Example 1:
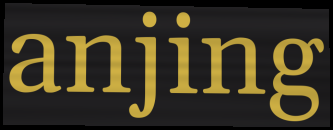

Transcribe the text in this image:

anjing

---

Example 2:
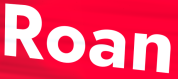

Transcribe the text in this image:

Roan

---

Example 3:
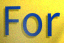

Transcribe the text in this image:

For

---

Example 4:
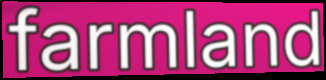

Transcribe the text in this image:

farmland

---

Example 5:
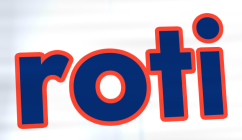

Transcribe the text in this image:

roti